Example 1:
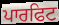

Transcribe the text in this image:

ਪਾਰਫਿਟ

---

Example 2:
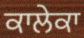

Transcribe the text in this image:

ਕਾਲੇਕਾ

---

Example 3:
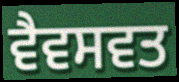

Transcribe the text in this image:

ਵੈਵਸਵਤ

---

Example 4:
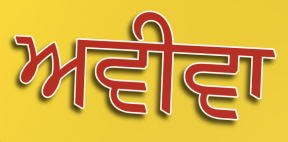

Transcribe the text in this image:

ਅਵੀਵਾ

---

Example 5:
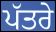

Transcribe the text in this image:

ਪੱਤਰੇ